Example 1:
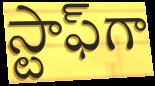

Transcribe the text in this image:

స్టాఫ్‌గా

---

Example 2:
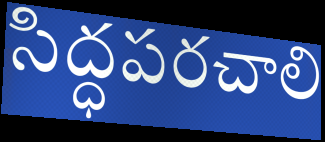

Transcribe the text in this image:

సిద్ధపరచాలి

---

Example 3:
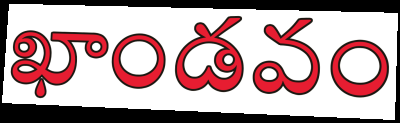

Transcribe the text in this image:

ఖాండవం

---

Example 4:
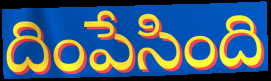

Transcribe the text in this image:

దింపేసింది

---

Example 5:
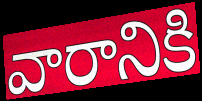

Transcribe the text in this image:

వారానికి